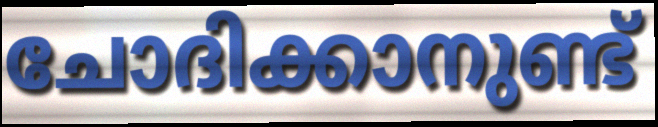
ചോദിക്കാനുണ്ട്